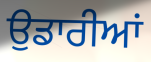
ਉਡਾਰੀਆਂ